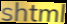
shtml